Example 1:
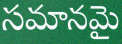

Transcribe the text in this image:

సమానమై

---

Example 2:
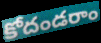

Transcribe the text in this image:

కోదండరాం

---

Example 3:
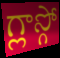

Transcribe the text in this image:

గ్లాస్గో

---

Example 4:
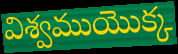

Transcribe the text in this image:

విశ్వముయొక్క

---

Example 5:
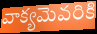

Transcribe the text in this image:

వాక్యమెవరికి